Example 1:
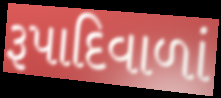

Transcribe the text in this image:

રૂપાદિવાળાં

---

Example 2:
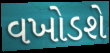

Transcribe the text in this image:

વખોડશે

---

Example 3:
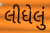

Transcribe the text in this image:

લીધેલું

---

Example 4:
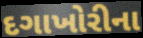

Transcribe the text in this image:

દગાખોરીના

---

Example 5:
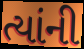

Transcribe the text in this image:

ત્યાંની